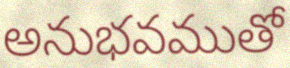
అనుభవముతో